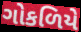
ગોકળિયે